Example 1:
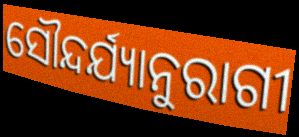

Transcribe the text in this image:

ସୌନ୍ଦର୍ଯ୍ୟାନୁରାଗୀ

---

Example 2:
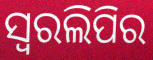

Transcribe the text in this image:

ସ୍ୱରଲିପିର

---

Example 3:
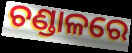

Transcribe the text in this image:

ଚଣ୍ଡାଳରେ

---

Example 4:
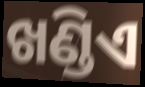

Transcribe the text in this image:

ଖଣ୍ଡିଏ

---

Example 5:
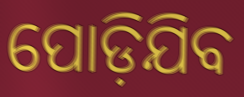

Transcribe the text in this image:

ପୋଡ଼ିଯିବ